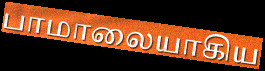
பாமாலையாகிய